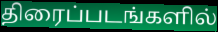
திரைப்படங்களில்